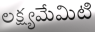
లక్ష్యమేమిటి